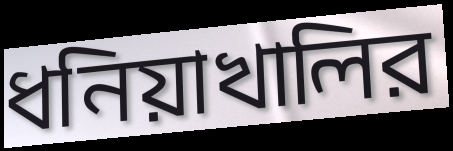
ধনিয়াখালির